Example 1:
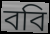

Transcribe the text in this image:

ববি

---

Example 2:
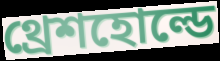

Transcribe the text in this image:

থ্রেশহোল্ডে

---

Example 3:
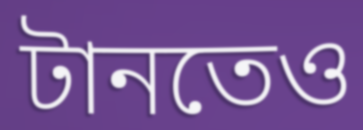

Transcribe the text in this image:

টানতেও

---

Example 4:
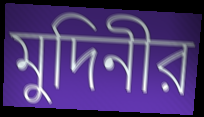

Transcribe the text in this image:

মুদিনীর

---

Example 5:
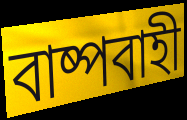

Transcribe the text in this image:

বাষ্পবাহী